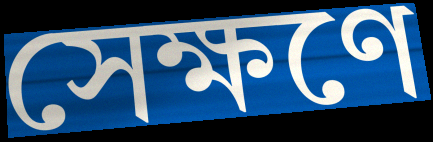
সেক্ষণে